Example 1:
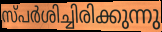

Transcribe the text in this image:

സ്പർശിച്ചിരിക്കുന്നു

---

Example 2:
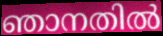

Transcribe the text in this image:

ഞാനതിൽ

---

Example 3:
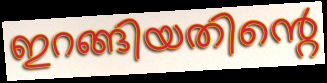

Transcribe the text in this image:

ഇറങ്ങിയതിന്റെ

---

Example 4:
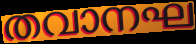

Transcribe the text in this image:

തവാനഘ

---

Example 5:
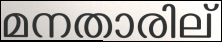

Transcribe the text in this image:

മനതാരില്